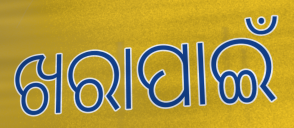
ଖରାପାଇଁ